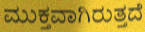
ಮುಕ್ತವಾಗಿರುತ್ತದೆ